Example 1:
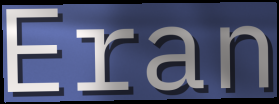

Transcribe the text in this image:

Eran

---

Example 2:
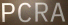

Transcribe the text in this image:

PCRA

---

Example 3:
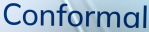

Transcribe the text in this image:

Conformal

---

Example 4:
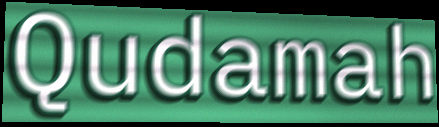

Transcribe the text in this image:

Qudamah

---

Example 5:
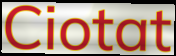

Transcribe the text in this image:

Ciotat